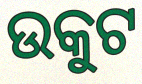
ଉକୁଟ